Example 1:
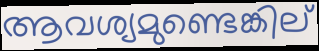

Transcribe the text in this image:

ആവശ്യമുണ്ടെങ്കില്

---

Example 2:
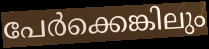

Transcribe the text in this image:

പേർക്കെങ്കിലും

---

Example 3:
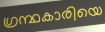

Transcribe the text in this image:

ഗ്രന്ഥകാരിയെ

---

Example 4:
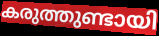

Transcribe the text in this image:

കരുത്തുണ്ടായി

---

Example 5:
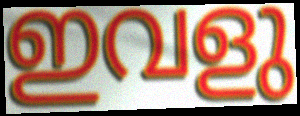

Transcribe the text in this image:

ഇവളു